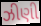
ઝીણી